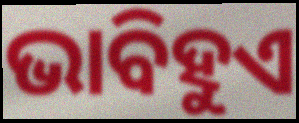
ଭାବିହୁଏ